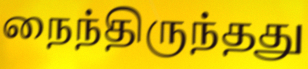
நைந்திருந்தது